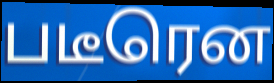
படீரென